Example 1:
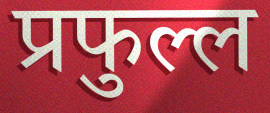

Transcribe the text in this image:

प्रफुल्ल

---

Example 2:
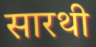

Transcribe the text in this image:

सारथी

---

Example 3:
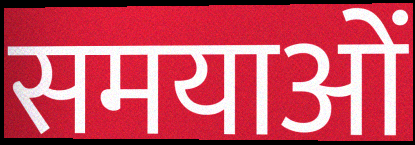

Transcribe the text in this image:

समयाओं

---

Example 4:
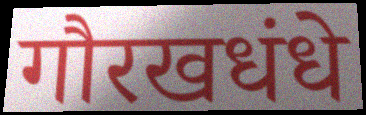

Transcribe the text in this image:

गौरखधंधे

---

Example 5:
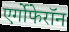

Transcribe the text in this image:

एर्गोफेरॉन